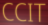
CCIT